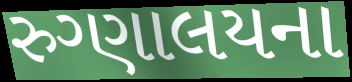
રુગ્ણાલયના